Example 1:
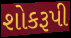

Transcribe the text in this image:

શોકરૂપી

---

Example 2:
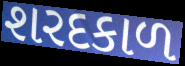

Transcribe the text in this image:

શરદકાળ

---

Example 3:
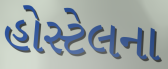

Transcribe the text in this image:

હોસ્ટેલના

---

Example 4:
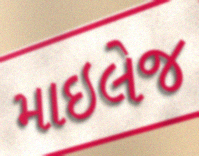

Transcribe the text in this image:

માઇલેજ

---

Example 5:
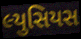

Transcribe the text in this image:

લ્યુસિયસ